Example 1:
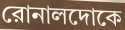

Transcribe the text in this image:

রোনালদোকে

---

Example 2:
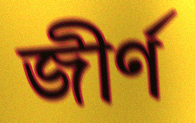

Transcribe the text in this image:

জীর্ণ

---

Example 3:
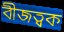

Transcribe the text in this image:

বীজত্বক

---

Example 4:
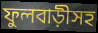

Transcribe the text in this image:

ফুলবাড়ীসহ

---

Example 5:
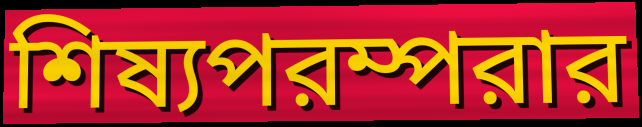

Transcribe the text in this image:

শিষ্যপরম্পরার